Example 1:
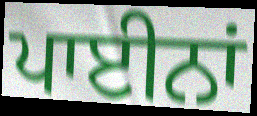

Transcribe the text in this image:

ਪਾਈਨਾਂ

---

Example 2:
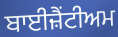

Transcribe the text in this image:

ਬਾਈਜ਼ੈਂਟੀਅਮ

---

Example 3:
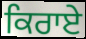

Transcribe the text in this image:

ਕਿਰਾਏ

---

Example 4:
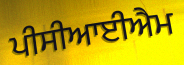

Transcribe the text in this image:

ਪੀਸੀਆਈਐਮ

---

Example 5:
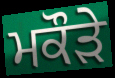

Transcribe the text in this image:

ਮਕੌੜੇ